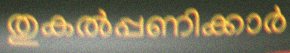
തുകൽപ്പണിക്കാർ